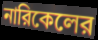
নারিকেলের